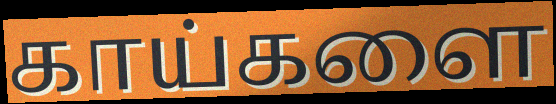
காய்களை